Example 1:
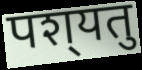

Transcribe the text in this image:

पश्यतु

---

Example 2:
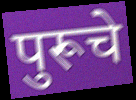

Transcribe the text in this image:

पुरूचे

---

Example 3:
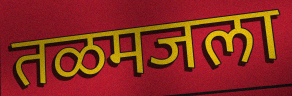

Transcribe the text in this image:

तळमजला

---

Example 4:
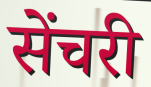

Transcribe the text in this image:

सेंचरी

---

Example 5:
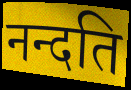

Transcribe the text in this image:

नन्दति